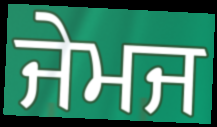
ਜੇਮਜ